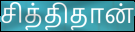
சித்திதான்